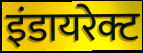
इंडायरेक्ट